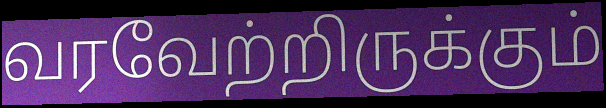
வரவேற்றிருக்கும்